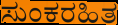
ಸುಂಕರಹಿತ